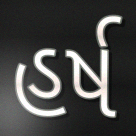
હર્ષ